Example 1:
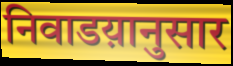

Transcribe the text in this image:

निवाडय़ानुसार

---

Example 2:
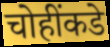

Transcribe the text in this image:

चोहींकडे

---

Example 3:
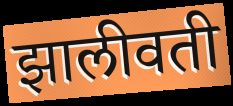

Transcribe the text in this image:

झालीवती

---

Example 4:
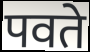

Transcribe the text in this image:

पवते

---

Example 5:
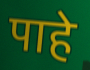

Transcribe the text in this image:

पाहे